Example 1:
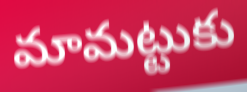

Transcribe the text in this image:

మామట్టుకు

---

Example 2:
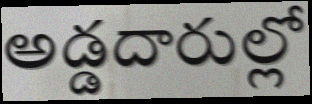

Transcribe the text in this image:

అడ్డదారుల్లో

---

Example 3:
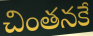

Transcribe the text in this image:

చింతనకే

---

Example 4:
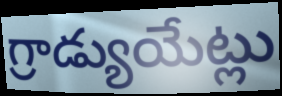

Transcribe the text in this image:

గ్రాడ్యుయేట్లు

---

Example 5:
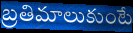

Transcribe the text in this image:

బ్రతిమాలుకుంటే